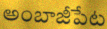
అంబాజీపేట